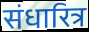
संधारित्र